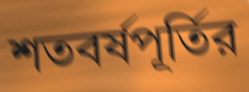
শতবর্ষপূর্তির